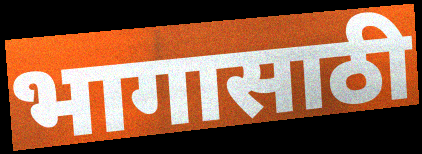
भागासाठी